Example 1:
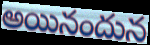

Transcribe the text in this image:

అయినందున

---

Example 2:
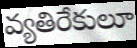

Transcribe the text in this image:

వ్యతిరేకులూ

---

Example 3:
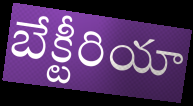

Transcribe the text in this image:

బేక్టీరియా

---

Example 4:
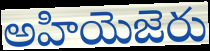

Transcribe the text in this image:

అహియెజెరు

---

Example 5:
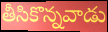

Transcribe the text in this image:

తీసికొన్నవాడు